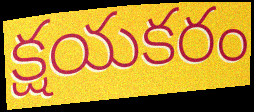
క్షయకరం